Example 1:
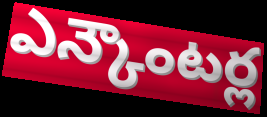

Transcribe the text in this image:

ఎన్కౌంటర్ల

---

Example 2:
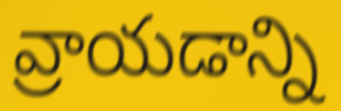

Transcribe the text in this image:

వ్రాయడాన్ని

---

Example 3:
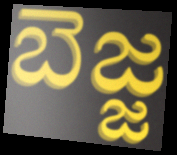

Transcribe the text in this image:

బెజ్జ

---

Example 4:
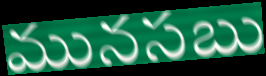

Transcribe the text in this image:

మునసబు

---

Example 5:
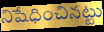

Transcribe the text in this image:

నిషేధించినట్టు